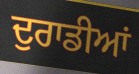
ਦੁਰਾਡੀਆਂ